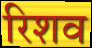
रिशव